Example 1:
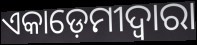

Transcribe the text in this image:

ଏକାଡ଼େମୀଦ୍ୱାରା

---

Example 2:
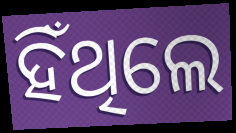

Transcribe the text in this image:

ହିଁଥିଲେ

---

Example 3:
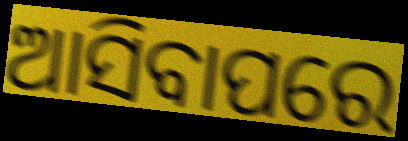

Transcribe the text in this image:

ଆସିବାପରେ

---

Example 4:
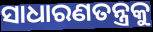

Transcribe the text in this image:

ସାଧାରଣତନ୍ତ୍ରକୁ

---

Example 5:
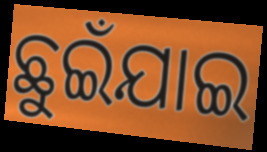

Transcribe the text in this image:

ଛୁଇଁଯାଇ